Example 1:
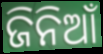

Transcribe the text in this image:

ଜିନିଆଁ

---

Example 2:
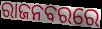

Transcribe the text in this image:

ରାଜନବରରେ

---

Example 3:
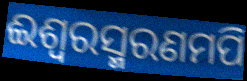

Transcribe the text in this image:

ଈଶ୍ଵରସ୍ମରଣମପି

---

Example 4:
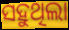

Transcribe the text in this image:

ସହୁଥିଲା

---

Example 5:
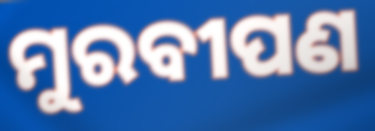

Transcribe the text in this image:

ମୁରବୀପଣ